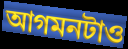
আগমনটাও